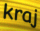
kraj